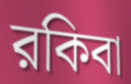
রকিবা